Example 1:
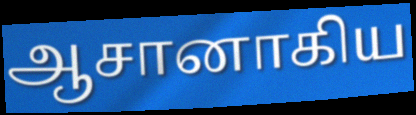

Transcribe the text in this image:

ஆசானாகிய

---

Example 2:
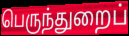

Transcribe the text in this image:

பெருந்துறைப்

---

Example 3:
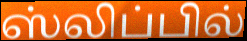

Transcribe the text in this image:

ஸ்லிப்பில்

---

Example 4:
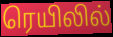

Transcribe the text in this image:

ரெயிலில்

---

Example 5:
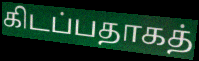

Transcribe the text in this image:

கிடப்பதாகத்